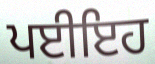
ਪਈਇਹ